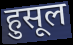
हुसूल